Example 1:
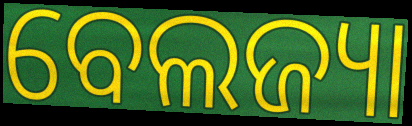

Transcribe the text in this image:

ବେଲଜ୍ୟା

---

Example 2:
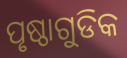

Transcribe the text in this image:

ପୃଷ୍ଠାଗୁଡିକ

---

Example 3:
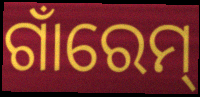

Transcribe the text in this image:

ଗାଁରେମ୍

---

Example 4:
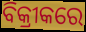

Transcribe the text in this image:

ବିକ୍ରୀକରେ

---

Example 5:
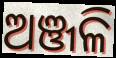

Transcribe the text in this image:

ଅଞ୍ଜଳି